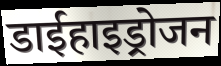
डाईहाइड्रोजन